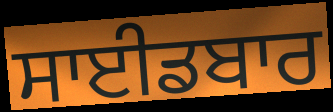
ਸਾਈਡਬਾਰ